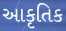
આકૃતિક